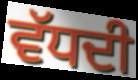
ਵੱਧਦੀ